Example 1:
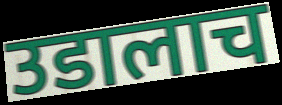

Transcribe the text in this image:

उडालाच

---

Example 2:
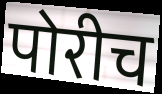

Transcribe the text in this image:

पोरीच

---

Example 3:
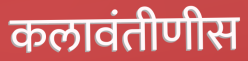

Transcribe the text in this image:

कलावंतीणीस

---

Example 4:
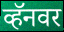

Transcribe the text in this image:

व्हॅनवर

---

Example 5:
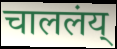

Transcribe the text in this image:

चाललंय्